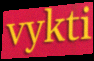
vykti